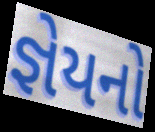
જ્ઞેયનો